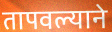
तापवल्याने